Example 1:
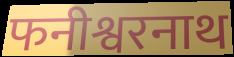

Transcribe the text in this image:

फनीश्वरनाथ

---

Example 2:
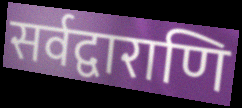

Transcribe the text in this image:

सर्वद्वाराणि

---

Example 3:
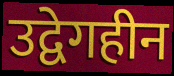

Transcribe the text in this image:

उद्वेगहीन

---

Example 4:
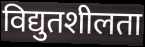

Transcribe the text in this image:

विद्युतशीलता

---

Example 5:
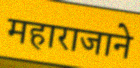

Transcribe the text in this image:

महाराजाने